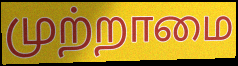
முற்றாமை